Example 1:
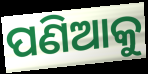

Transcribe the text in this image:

ପଣିଆକୁ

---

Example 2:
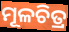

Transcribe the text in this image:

ମୂଳଚିତ୍ର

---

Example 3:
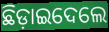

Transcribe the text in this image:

ଛିଡ଼ାଇଦେଲେ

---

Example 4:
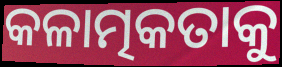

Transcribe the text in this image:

କଳାତ୍ମକତାକୁ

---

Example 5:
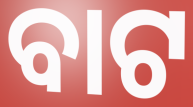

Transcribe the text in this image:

ବାଟ